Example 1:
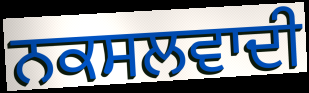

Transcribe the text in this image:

ਨਕਸਲਵਾਦੀ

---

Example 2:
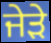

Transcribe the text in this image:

ਜੇੜੇ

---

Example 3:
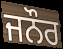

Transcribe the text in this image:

ਜਨੌਰ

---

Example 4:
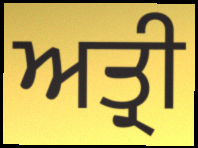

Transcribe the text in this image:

ਅਤ੍ਰੀ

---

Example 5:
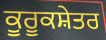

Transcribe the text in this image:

ਕੂਰੂਕਸ਼ੇਤਰ